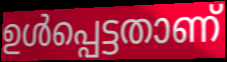
ഉൾപ്പെട്ടതാണ്